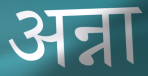
अन्ना